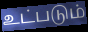
உட்படும்